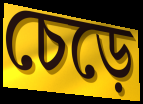
চেড়ে